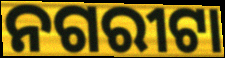
ନଗରୀଟା